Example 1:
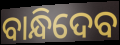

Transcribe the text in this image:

ବାନ୍ଧିଦେବ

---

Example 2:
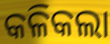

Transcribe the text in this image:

କଳିକଲା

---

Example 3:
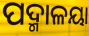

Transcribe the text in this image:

ପଦ୍ମାଳୟା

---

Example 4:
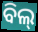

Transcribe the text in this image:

ବିଲ୍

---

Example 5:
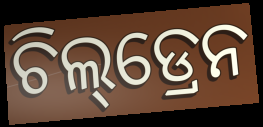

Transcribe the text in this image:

ଚିଲ୍‌ଡ୍ରେନ